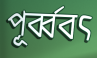
পূর্ব্ববৎ